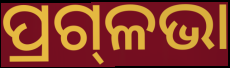
ପ୍ରଗ୍‌ଳଭା